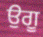
ਉਗੂ